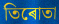
তিৰোতা